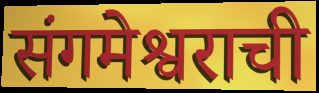
संगमेश्वराची